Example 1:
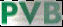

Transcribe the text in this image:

PVB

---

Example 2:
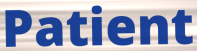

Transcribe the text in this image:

Patient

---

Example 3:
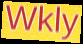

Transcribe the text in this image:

Wkly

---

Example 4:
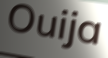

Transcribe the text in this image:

Ouija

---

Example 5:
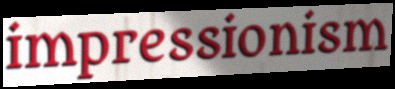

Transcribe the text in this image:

impressionism